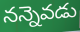
నన్నెవడు